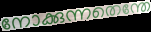
നോക്കുന്നതെന്തേ